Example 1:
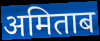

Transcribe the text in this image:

अमिताब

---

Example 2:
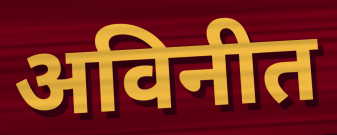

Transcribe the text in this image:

अविनीत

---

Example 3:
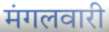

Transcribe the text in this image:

मंगलवारी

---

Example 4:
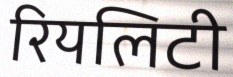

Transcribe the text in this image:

रियलिटी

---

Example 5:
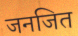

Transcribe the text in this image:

जनजित